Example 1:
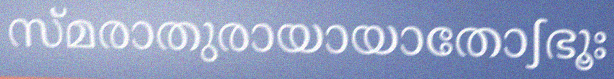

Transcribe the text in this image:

സ്മരാതുരായായാതോഽഭൂഃ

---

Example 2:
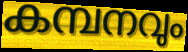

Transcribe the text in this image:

കമ്പനവും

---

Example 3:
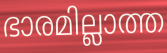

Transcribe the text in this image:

ഭാരമില്ലാത്ത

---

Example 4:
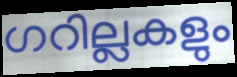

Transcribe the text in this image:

ഗറില്ലകളും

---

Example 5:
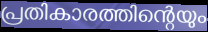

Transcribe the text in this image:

പ്രതികാരത്തിന്റെയും